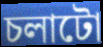
চলাটো